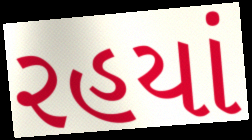
રહયાં